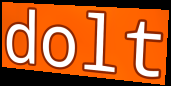
dolt